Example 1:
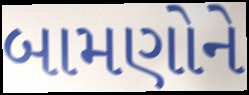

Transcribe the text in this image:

બામણોને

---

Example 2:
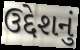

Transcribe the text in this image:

ઉદ્દેશનું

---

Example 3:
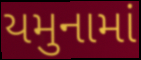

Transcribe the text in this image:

યમુનામાં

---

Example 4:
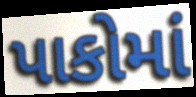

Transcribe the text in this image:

પાકોમાં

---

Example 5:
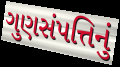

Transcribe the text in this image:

ગુણસંપત્તિનું